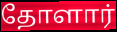
தோளார்